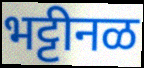
भट्टीनळ